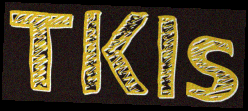
TKIs